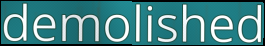
demolished